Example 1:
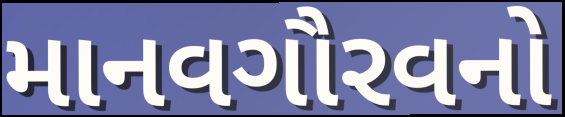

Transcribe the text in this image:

માનવગૌરવનો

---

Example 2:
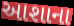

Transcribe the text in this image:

આશાના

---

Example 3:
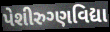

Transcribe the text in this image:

પેશીરુગ્ણવિદ્યા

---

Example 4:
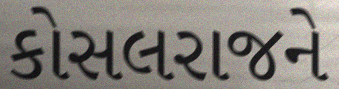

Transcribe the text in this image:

કોસલરાજને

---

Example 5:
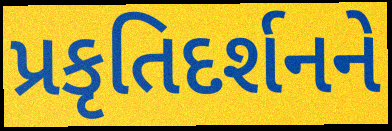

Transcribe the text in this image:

પ્રકૃતિદર્શનને